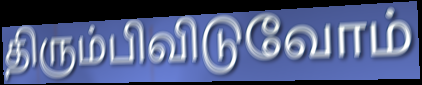
திரும்பிவிடுவோம்